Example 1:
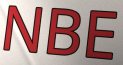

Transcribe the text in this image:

NBE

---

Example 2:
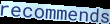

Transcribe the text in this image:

recommends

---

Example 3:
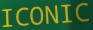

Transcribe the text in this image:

ICONIC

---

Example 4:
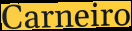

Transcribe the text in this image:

Carneiro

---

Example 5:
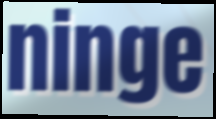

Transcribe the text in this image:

ninge